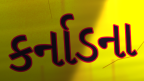
કર્નાડના